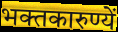
भक्तकारुण्यें